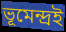
ভূমেন্দ্রই